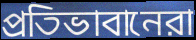
প্রতিভাবানেরা